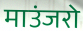
माउंजरो